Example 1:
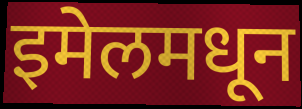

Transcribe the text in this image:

इमेलमधून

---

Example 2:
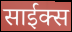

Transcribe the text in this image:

साईक्स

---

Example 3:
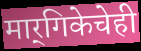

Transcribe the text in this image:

मार्गिकेचेही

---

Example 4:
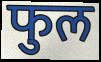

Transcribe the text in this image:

फुल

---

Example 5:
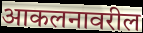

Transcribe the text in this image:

आकलनावरील